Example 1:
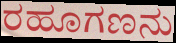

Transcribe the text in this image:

ರಹೂಗಣನು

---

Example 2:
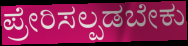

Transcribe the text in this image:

ಪ್ರೇರಿಸಲ್ಪಡಬೇಕು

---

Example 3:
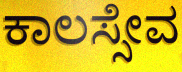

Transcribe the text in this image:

ಕಾಲಸ್ಸೇವ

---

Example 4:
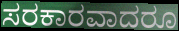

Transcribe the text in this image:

ಸರಕಾರವಾದರೂ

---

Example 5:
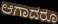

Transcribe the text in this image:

ಆಗಾದರೂ